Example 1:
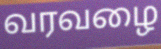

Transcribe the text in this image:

வரவழை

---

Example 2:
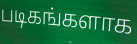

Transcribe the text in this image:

படிகங்களாக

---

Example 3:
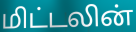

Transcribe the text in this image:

மிட்டலின்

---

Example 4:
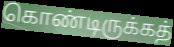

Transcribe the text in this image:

கொண்டிருக்கத்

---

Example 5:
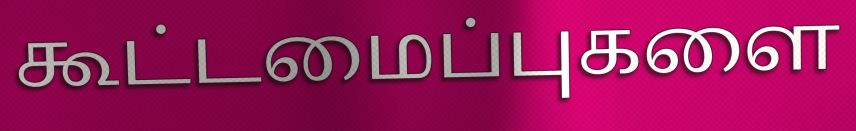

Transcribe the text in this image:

கூட்டமைப்புகளை